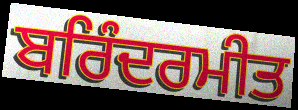
ਬਰਿੰਦਰਮੀਤ